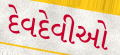
દેવદેવીઓ